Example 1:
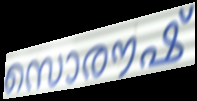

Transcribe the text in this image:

സൊരൗഷ്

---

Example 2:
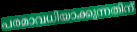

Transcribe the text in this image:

പരമാവധിയാക്കുന്നതിന്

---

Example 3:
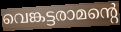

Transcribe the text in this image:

വെങ്കട്ടരാമന്റെ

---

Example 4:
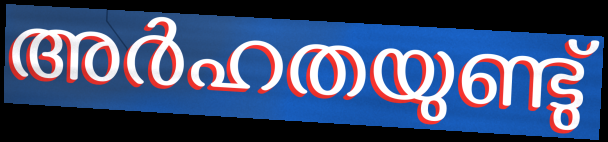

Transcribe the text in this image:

അർഹതയുണ്ടു്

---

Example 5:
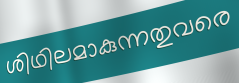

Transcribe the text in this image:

ശിഥിലമാകുന്നതുവരെ